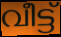
വീട്ട്